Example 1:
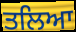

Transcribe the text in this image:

ਤਲਿਆ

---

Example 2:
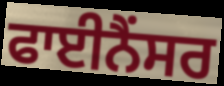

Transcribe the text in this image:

ਫਾਈਨੈਂਸਰ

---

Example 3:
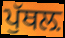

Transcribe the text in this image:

ਪੁੱਥਲ਼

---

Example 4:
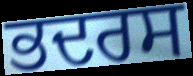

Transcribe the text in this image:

ਭਦਰਸ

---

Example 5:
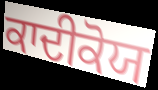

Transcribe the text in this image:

ਕਾਦੀਕੋਯ